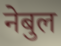
नेबुल